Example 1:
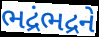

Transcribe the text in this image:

ભદ્રંભદ્રને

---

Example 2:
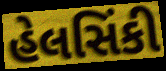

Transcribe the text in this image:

હેલસિંકી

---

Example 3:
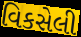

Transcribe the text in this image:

વિકસેલી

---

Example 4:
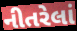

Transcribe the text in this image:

નીતરેલાં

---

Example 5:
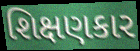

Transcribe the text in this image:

શિક્ષણકાર